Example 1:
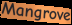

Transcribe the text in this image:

Mangrove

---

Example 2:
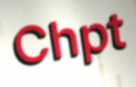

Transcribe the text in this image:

Chpt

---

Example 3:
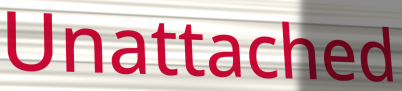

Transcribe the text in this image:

Unattached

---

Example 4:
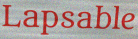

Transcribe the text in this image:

Lapsable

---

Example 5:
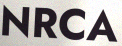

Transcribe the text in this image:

NRCA